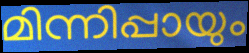
മിന്നിപ്പായും